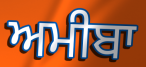
ਅਮੀਬਾ